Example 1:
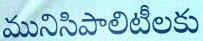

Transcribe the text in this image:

మునిసిపాలిటీలకు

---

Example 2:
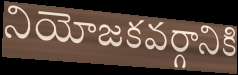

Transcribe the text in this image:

నియోజకవర్గానికి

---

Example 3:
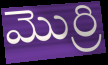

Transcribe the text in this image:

మొర్రి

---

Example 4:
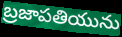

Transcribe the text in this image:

బ్రజాపతియును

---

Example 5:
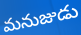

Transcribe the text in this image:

మనుజుడు